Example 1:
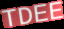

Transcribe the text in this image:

TDEE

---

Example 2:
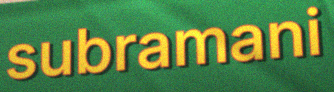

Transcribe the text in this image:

subramani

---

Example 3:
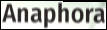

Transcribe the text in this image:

Anaphora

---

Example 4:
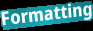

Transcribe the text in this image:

Formatting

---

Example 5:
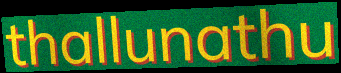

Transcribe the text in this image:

thallunathu